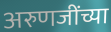
अरुणजींच्या